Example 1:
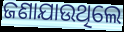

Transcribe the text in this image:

ଜଣାଯାଉଥିଲେ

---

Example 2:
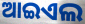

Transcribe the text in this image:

ଆଇଏଲ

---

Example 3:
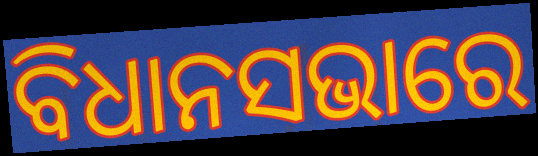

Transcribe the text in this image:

ବିଧାନସଭାରେ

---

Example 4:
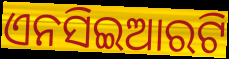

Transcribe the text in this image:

ଏନସିଇଆରଟି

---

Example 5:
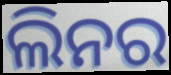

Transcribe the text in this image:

ଲିନର